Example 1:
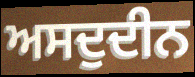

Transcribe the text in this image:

ਅਸਦੁਦੀਨ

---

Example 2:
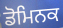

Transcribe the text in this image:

ਡੋਮਿਨਕ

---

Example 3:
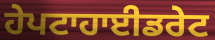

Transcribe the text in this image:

ਹੇਪਟਾਹਾਈਡਰੇਟ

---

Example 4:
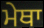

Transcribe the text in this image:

ਮੇਥਾ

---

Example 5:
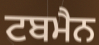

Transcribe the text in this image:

ਟਬਮੈਨ